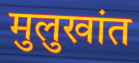
मुलुखांत